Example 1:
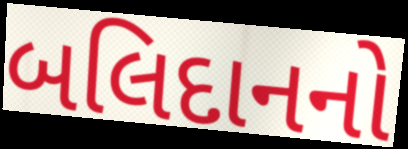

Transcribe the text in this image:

બલિદાનનો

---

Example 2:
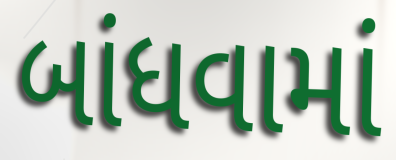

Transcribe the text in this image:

બાંધવામાં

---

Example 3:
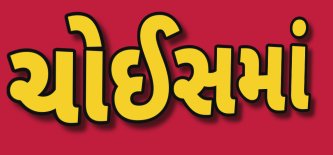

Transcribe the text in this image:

ચોઈસમાં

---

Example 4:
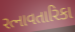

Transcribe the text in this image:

રત્નાવતારિકા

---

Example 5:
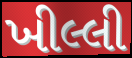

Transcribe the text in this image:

ખીલ્લી